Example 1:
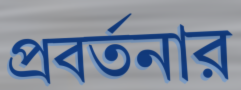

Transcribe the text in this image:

প্রবর্তনার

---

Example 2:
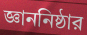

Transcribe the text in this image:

জ্ঞাননিষ্ঠার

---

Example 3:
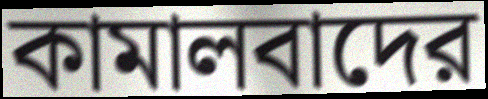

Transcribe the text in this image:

কামালবাদের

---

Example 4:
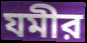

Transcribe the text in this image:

যমীর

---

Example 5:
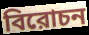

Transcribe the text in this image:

বিরোচন